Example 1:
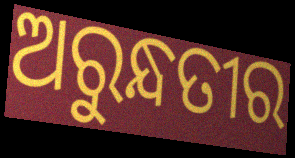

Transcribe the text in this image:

ଅରୁନ୍ଧତୀର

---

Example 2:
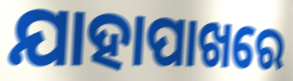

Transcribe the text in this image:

ଯାହାପାଖରେ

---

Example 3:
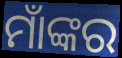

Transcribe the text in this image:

ମାଁଙ୍କର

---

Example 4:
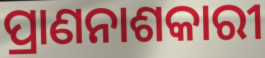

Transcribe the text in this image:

ପ୍ରାଣନାଶକାରୀ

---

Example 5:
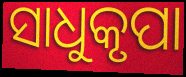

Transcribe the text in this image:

ସାଧୁକୃପା